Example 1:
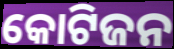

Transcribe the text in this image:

କୋଟିଜନ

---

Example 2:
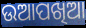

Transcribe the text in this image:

ଉଆପଖିଆ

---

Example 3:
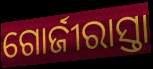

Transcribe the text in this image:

ଗୋର୍ଜୀରାସ୍ତା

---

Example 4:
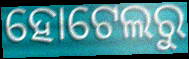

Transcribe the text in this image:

ହୋଟେଲରୁ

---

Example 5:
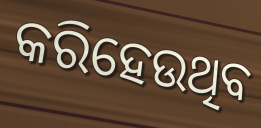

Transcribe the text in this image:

କରିହେଉଥିବ